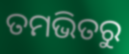
ତମଭିତରୁ